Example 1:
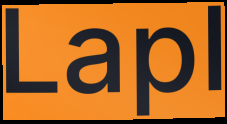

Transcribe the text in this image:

Lapl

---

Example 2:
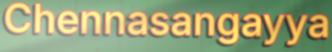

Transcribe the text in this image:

Chennasangayya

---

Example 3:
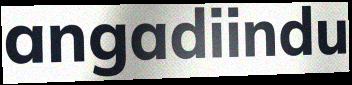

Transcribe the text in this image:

angadiindu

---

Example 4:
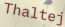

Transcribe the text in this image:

Thaltej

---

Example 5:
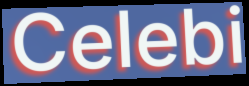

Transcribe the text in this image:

Celebi